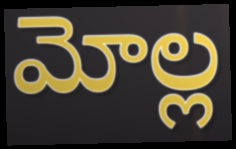
మోల్ల